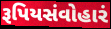
રૂપિયસંવોહારં